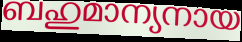
ബഹുമാന്യനായ